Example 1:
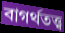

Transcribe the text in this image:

বাগর্থতত্ত্ব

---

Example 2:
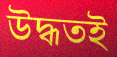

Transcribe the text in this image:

উদ্ধতই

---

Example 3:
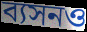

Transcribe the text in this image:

ব্যসনও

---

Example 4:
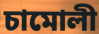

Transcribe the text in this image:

চামোলী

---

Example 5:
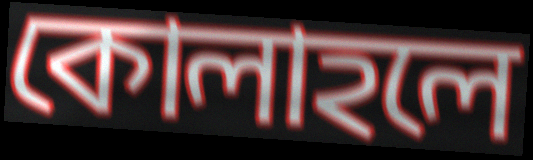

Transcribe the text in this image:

কোলাহলে